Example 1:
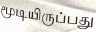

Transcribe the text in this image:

மூடியிருப்பது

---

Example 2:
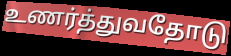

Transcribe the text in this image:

உணர்த்துவதோடு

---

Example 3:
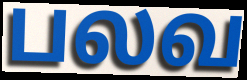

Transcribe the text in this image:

பலவ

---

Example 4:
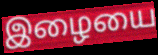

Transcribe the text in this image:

இழையை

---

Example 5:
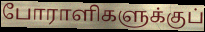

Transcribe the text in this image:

போராளிகளுக்குப்